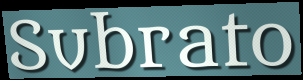
Subrato